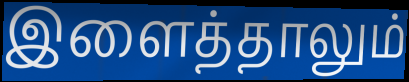
இளைத்தாலும்